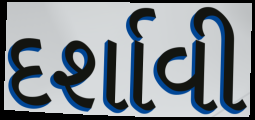
દર્શાવી